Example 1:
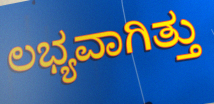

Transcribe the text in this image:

ಲಭ್ಯವಾಗಿತ್ತು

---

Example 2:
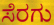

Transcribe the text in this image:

ಸೆರಗು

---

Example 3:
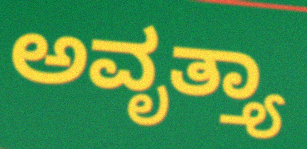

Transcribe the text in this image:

ಅವೃತ್ತ್ಯಾ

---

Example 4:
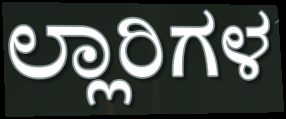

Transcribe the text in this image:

ಲ್ಲಾರಿಗಳ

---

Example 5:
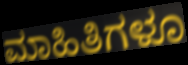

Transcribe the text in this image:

ಮಾಹಿತಿಗಳೂ